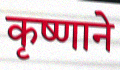
कृष्णाने